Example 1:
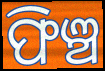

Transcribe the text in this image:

ଫିଞ୍ଚ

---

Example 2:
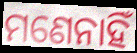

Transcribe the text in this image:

ମଣେନାହିଁ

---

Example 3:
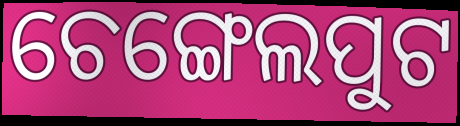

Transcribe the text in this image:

ଚେଙ୍ଗେଲପୁଟ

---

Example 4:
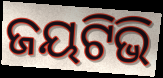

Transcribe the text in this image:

ଜୟଟିଭି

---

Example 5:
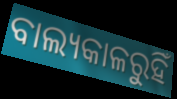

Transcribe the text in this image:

ବାଲ୍ୟକାଳରୁହିଁ